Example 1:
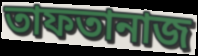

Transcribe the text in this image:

তাফতানাজ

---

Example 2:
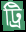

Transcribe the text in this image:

ট্রি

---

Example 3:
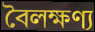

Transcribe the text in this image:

বৈলক্ষণ্য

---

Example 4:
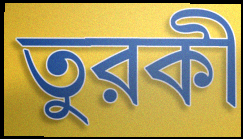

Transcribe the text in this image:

তুরকী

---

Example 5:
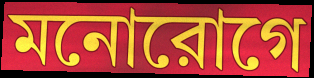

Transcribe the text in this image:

মনোরোগে